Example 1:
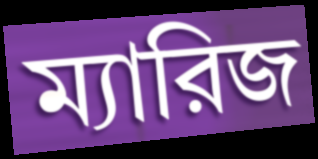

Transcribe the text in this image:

ম্যারিজ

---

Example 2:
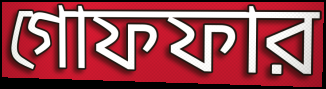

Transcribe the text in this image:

গোফফার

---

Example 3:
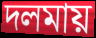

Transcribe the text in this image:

দলমায়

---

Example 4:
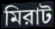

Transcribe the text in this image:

মিরাট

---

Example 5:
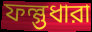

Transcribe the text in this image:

ফল্গুধারা